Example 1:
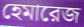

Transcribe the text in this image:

হেমারেজ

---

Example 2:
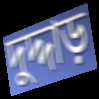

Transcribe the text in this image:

দুদ্দাড়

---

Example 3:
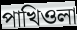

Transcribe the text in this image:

পাখিওলা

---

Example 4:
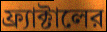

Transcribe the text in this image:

ফ্র্যাক্টালের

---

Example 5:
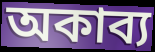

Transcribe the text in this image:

অকাব্য